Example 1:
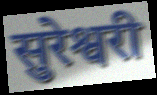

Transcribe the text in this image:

सुरेश्वरी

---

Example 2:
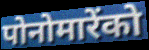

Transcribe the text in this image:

पोनोमारेंको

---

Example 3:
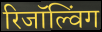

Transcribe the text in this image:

रिजॉल्विंग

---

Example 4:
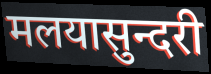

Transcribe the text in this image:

मलयासुन्दरी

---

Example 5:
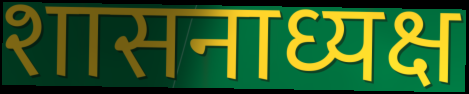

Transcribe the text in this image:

शासनाध्यक्ष